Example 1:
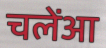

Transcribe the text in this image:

चलेंआ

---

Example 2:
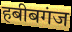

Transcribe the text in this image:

हबीबगंज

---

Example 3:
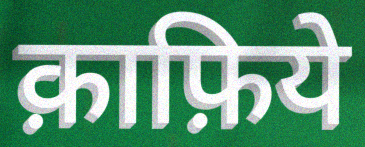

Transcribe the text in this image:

क़ाफ़िये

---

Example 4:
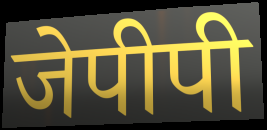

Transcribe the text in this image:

जेपीपी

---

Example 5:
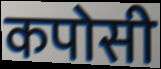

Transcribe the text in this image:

कपोसी